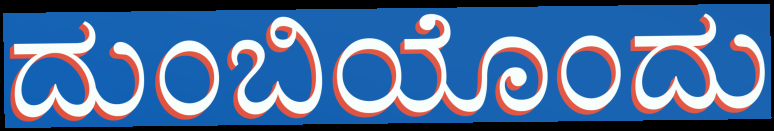
ದುಂಬಿಯೊಂದು